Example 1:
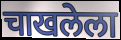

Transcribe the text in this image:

चाखलेला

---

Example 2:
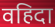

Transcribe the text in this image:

वहिदा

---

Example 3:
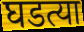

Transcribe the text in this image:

घडत्या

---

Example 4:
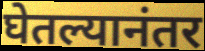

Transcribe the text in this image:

घेतल्यानंतर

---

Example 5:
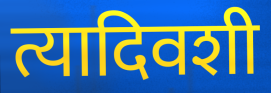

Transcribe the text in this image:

त्यादिवशी